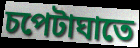
চপেটাঘাতে